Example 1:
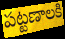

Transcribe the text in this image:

పట్టణాలకి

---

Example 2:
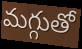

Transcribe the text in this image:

మగ్గుతో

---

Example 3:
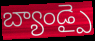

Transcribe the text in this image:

బ్యాండ్పై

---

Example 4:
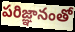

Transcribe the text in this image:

పరిజ్ఞానంతో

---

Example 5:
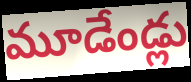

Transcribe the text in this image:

మూడేండ్లు